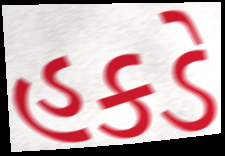
હકડે